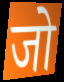
जो